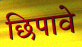
छिपावे